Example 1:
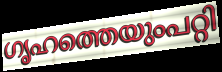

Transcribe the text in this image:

ഗൃഹത്തെയുംപറ്റി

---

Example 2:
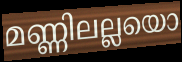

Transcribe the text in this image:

മണ്ണിലല്ലയൊ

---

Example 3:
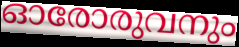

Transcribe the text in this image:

ഓരോരുവനും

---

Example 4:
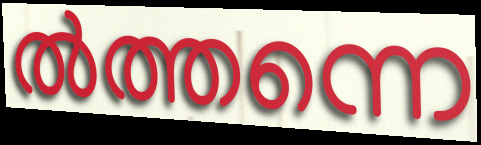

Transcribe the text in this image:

ൽത്തന്നെ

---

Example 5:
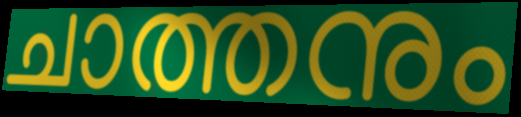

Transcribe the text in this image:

ചാത്തനും